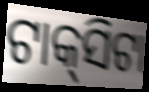
ଟାକ୍‌ସିଟା